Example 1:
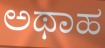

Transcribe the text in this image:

ಅಥಾಹ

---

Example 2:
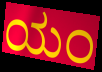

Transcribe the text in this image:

ಯಂ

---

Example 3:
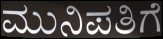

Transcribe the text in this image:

ಮುನಿಪತಿಗೆ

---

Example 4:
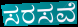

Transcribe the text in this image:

ಸರಸವೆ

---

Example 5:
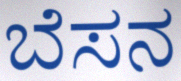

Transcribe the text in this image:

ಬೆಸನ